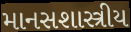
માનસશાસ્ત્રીય